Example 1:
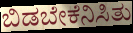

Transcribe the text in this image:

ಬಿಡಬೇಕೆನಿಸಿತು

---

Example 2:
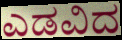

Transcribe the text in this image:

ಎಡವಿದ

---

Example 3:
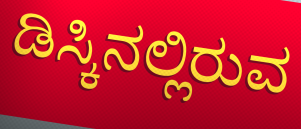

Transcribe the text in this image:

ಡಿಸ್ಕಿನಲ್ಲಿರುವ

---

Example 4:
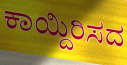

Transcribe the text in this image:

ಕಾಯ್ದಿರಿಸದ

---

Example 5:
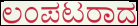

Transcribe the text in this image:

ಲಂಪಟರಾದ